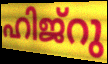
ഹിജ്റു